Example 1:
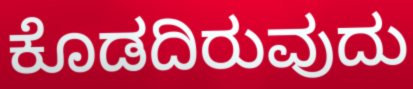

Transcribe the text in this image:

ಕೊಡದಿರುವುದು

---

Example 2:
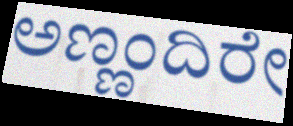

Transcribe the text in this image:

ಅಣ್ಣಂದಿರೇ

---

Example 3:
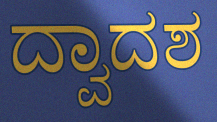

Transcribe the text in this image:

ದ್ವಾದಶ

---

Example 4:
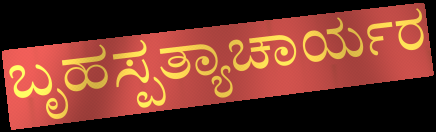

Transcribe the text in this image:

ಬೃಹಸ್ಪತ್ಯಾಚಾರ್ಯರ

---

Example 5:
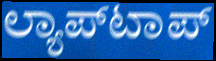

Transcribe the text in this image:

ಲ್ಯಾಪ್‍ಟಾಪ್